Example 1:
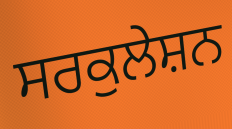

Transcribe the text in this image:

ਸਰਕੁਲੇਸ਼ਨ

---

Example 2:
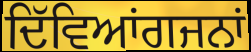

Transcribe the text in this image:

ਦਿੱਵਿਆਂਗਜਨਾਂ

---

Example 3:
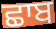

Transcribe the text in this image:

ਛਾਬ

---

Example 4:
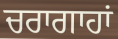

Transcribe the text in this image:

ਚਰਾਗਾਹਾਂ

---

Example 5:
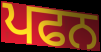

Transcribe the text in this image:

ਪਫਨ